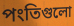
পংতিগুলো